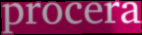
procera